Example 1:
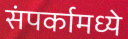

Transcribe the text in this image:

संपर्कामध्ये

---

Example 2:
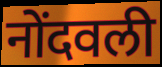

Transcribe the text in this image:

नोंदवली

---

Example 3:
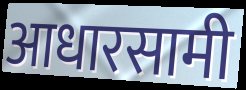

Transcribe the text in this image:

आधारसामी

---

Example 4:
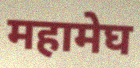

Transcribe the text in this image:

महामेघ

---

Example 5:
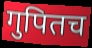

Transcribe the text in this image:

गुपितच